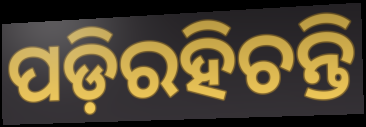
ପଡ଼ିରହିଚନ୍ତି